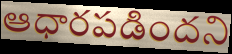
ఆధారపడిందని